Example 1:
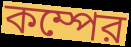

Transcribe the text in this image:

কম্পের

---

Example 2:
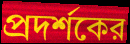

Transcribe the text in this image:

প্রদর্শকের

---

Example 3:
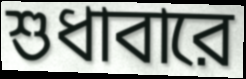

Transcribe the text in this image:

শুধাবারে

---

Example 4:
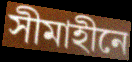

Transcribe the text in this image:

সীমাহীনে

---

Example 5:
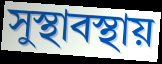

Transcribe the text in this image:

সুস্থাবস্থায়